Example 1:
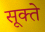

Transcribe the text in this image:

सूक्ते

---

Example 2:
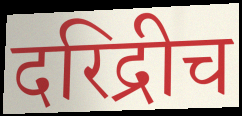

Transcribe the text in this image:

दरिद्रीच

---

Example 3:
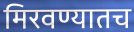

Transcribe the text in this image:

मिरवण्यातच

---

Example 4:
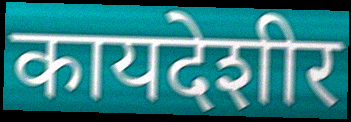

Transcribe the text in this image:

कायदेशीर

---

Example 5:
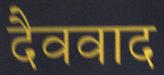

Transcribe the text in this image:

दैववाद